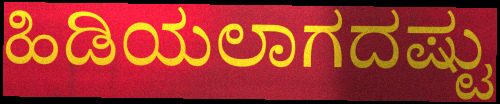
ಹಿಡಿಯಲಾಗದಷ್ಟು